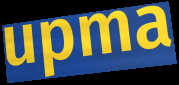
upma